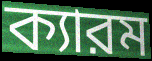
ক্যারম